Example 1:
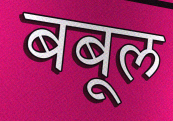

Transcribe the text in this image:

बबूल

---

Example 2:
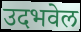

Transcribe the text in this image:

उदभवेल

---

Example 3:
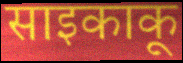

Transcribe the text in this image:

साइकाकू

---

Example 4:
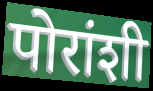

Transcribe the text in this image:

पोरांशी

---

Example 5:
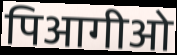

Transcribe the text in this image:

पिआगीओ